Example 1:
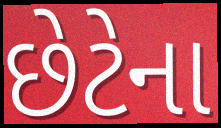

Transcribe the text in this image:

છેટેના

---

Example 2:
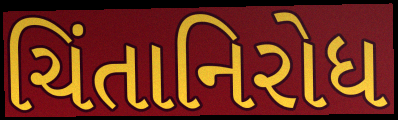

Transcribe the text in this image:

ચિંતાનિરોધ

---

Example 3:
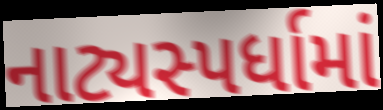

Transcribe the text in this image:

નાટ્યસ્પર્ધામાં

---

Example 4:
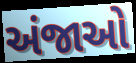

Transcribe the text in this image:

અંજાઓ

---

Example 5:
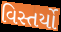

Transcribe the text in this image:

વિસ્તર્યો